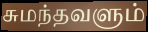
சுமந்தவளும்